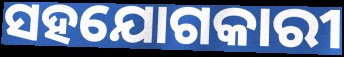
ସହଯୋଗକାରୀ